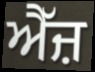
ਐੱਜ਼